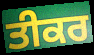
ਤੀਕਰ